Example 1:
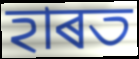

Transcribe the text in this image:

হাৰত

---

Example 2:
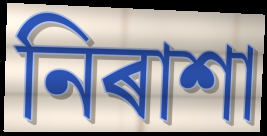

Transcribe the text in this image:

নিৰাশা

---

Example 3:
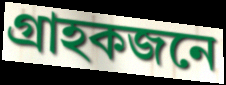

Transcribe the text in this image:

গ্ৰাহকজনে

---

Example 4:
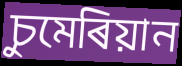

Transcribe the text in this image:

চুমেৰিয়ান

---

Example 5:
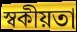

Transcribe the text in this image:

স্বকীয়তা